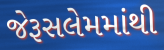
જેરૂસલેમમાંથી